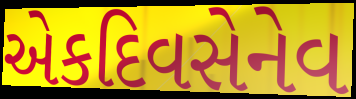
એકદિવસેનેવ